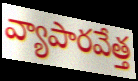
వ్యాపారవేత్త